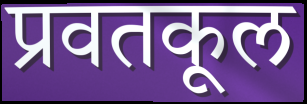
प्रवतकूल